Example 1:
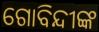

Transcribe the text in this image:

ଗୋବିନ୍ଦୀଙ୍କ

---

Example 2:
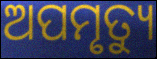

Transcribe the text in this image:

ଅପମୃତ୍ୟୁ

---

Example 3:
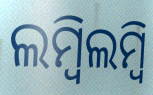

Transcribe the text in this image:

ଲମ୍ବିଲମ୍ବି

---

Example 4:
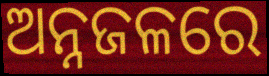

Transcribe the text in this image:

ଅନ୍ନଜଳରେ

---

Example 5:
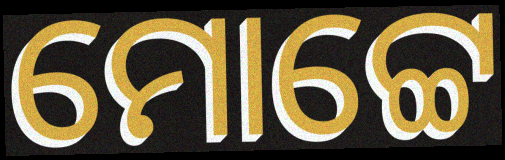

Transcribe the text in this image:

ମୋଟ୍ଟେ